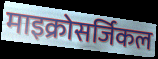
माइक्रोसर्जिकल